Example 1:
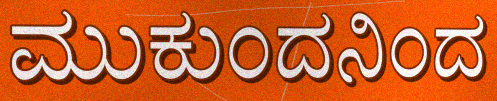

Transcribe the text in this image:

ಮುಕುಂದನಿಂದ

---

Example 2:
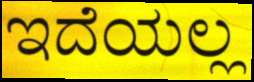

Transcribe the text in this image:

ಇದೆಯಲ್ಲ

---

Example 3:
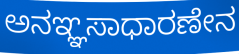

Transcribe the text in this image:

ಅನಞ್ಞಸಾಧಾರಣೇನ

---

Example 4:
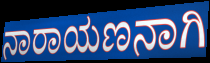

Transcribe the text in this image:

ನಾರಾಯಣನಾಗಿ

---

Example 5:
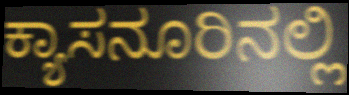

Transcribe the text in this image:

ಕ್ಯಾಸನೂರಿನಲ್ಲಿ